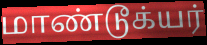
மாண்டூக்யர்